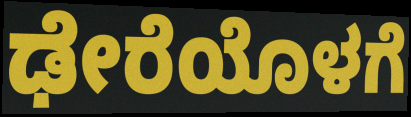
ಢೇರೆಯೊಳಗೆ